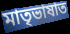
মাতৃভাষাত